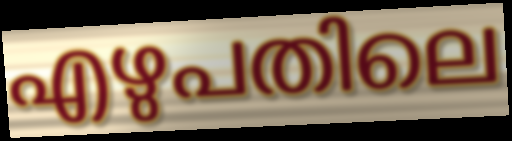
എഴുപതിലെ